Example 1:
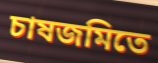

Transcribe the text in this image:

চাষজমিতে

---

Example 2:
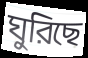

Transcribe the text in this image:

ঘুরিছে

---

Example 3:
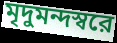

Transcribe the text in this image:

মৃদুমন্দস্বরে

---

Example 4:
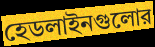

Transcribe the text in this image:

হেডলাইনগুলোর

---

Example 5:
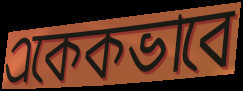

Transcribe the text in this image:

একেকভাবে